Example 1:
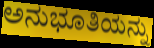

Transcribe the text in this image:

ಅನುಭೂತಿಯನ್ನು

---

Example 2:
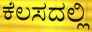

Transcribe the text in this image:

ಕೆಲಸದಲ್ಲಿ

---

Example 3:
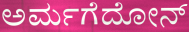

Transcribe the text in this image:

ಅರ್ಮಗೆದೋನ್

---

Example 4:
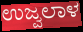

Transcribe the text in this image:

ಉಜ್ವಲಾಳ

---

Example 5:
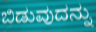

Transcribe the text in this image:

ಬಿಡುವುದನ್ನು